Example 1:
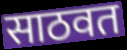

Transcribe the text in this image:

साठवत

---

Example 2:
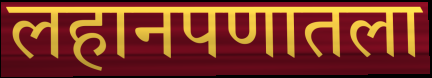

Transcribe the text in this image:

लहानपणातला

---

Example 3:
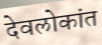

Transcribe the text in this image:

देवलोकांत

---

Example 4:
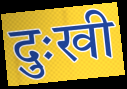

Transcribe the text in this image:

दुःखी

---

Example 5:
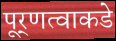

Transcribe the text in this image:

पूर्णत्वाकडे